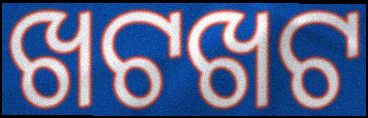
ଖଟଖଟ